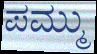
ಪಮ್ಮು